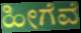
ಹೀಗೆವೆ